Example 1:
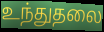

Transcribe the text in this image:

உந்துதலை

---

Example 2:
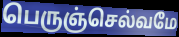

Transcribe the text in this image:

பெருஞ்செல்வமே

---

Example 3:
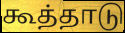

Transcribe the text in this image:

கூத்தாடு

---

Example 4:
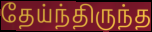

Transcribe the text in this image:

தேய்ந்திருந்த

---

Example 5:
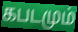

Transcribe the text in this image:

கபடமும்